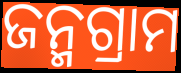
ଜନ୍ମଗ୍ରାମ